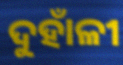
ଦୁହାଁଳୀ